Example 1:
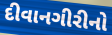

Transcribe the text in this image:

દીવાનગીરીનો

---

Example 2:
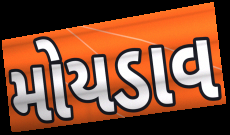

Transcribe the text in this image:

મોયડાવ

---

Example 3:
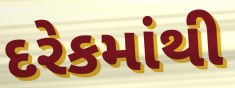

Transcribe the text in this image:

દરેકમાંથી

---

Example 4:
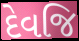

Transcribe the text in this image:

દેવજિ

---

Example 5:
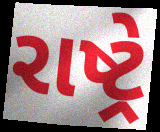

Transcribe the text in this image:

રાષ્ટ્રે